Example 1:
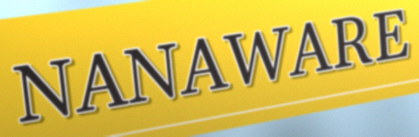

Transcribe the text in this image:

NANAWARE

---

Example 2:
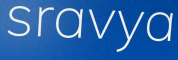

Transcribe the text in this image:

sravya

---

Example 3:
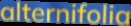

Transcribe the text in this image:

alternifolia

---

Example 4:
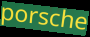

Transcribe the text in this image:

porsche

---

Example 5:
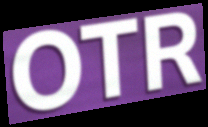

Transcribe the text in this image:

OTR